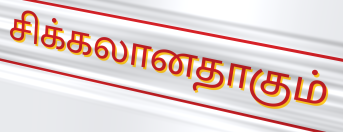
சிக்கலானதாகும்